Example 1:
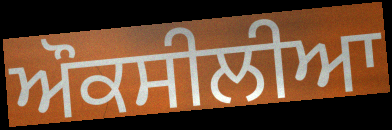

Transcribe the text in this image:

ਔਕਸੀਲੀਆ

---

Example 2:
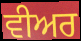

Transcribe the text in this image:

ਵੀਅਰ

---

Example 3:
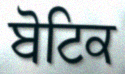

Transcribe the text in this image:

ਬੋਟਿਕ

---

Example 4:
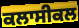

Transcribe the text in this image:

ਕਲਾਸੀਕਲ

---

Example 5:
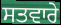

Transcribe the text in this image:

ਸਤਵਾਰੇ